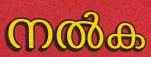
നൽക